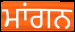
ਮਾਂਗਨ